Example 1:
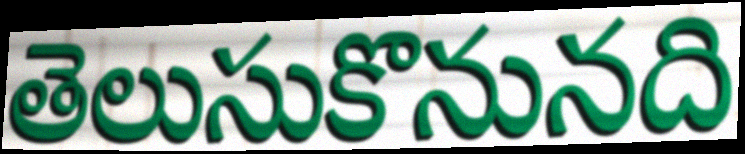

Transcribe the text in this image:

తెలుసుకొనునది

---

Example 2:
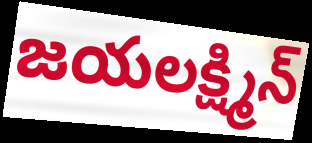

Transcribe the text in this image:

జయలక్ష్మిన్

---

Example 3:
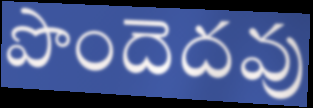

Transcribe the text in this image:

పొందెదవు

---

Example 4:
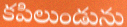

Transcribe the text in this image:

కపిలుండును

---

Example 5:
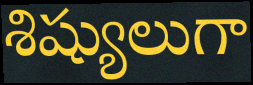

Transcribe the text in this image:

శిష్యులుగా